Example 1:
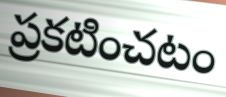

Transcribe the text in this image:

ప్రకటించటం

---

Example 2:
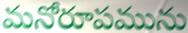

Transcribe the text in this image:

మనోరూపమును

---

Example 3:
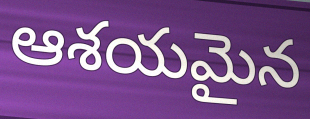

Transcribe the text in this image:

ఆశయమైన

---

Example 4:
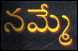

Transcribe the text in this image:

నమ్మే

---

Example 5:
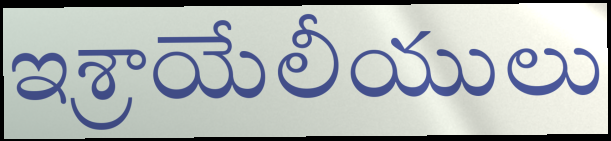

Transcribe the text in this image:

ఇశ్రాయేలీయులు